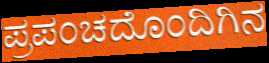
ಪ್ರಪಂಚದೊಂದಿಗಿನ